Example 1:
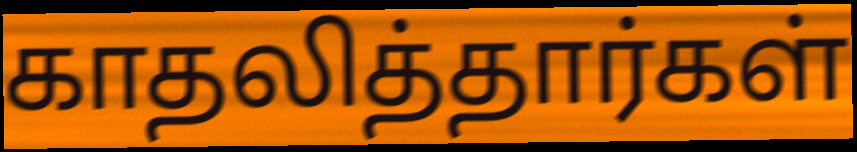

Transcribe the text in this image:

காதலித்தார்கள்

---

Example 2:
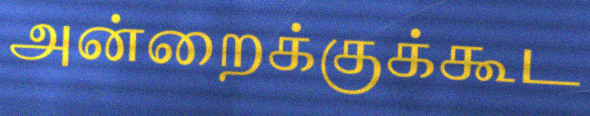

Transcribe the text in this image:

அன்றைக்குக்கூட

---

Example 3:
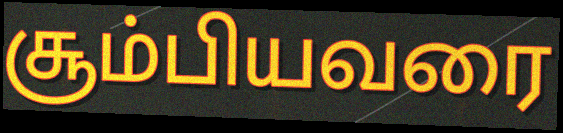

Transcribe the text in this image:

சூம்பியவரை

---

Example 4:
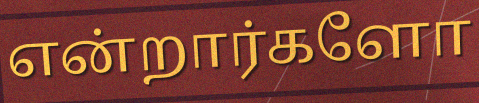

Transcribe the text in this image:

என்றார்களோ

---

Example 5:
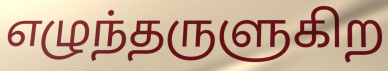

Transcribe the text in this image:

எழுந்தருளுகிற